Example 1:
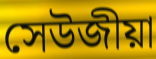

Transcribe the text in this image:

সেউজীয়া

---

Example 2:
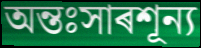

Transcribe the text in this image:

অন্তঃসাৰশূন্য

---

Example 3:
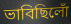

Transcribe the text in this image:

ভাবিছিলোঁ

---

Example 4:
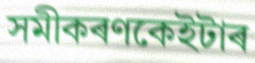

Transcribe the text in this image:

সমীকৰণকেইটাৰ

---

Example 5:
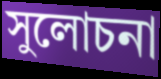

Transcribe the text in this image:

সুলোচনা